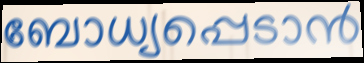
ബോധ്യപ്പെടാൻ